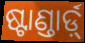
ଷ୍ଟାଣ୍ଡାର୍ଡ଼୍